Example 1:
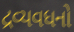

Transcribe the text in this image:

દ્રવ્યવધનો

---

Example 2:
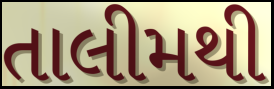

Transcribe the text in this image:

તાલીમથી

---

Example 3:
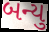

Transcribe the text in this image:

બન્યુ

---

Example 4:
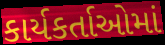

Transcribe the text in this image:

કાર્યકર્તાઓમાં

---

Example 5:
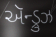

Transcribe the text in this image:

ઍન્ડ્રુઝ